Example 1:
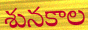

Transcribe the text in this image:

శునకాల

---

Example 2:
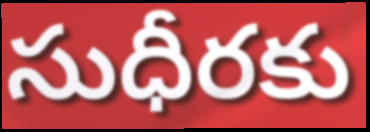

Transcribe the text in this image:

సుధీరకు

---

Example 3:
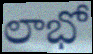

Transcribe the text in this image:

లాభో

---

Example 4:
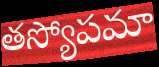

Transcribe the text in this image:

తస్యోపమా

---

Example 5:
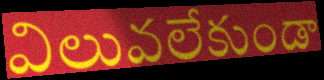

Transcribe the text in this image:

విలువలేకుండా